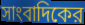
সাংবাদিকের